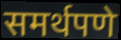
समर्थपणे